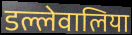
डल्लेवालिया